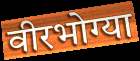
वीरभोग्या